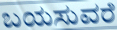
ಬಯಸುವರೆ